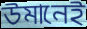
উমানেই